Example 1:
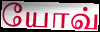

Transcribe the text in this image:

யோவ்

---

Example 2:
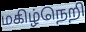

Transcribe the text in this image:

மகிழ்நெறி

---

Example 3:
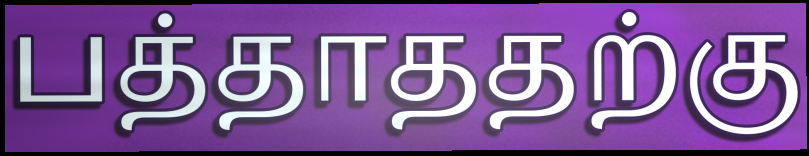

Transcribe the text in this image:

பத்தாததற்கு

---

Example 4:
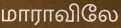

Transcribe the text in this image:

மாராவிலே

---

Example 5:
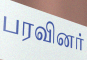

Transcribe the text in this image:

பரவினர்